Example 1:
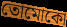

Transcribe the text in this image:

তোমোকো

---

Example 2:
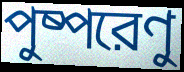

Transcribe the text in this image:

পুষ্পরেণু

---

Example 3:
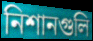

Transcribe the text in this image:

নিশানগুলি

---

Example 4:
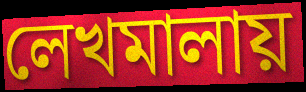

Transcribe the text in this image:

লেখমালায়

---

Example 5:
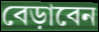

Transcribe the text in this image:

বেড়াবেন